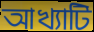
আখ্যাটি